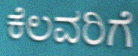
ಕೆಲವರಿಗೆ